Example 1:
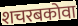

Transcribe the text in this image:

शचरबकोवा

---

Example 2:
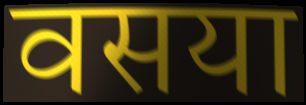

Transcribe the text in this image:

वसया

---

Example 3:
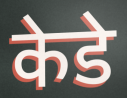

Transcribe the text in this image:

केडे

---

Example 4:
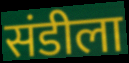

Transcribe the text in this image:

संडीला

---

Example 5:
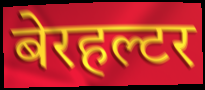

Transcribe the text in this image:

बेरहल्टर